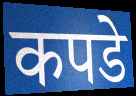
कपडे